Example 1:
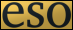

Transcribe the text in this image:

eso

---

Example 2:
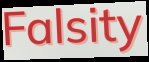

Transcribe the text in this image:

Falsity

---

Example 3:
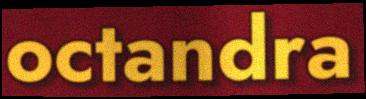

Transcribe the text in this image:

octandra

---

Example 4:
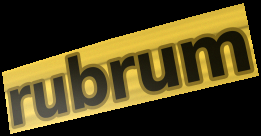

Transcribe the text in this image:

rubrum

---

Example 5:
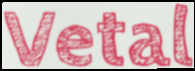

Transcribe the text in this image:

Vetal